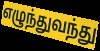
எழுந்துவந்து